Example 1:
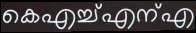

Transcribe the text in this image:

കെഎച്ച്എന്എ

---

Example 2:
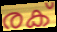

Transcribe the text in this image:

രക്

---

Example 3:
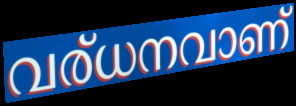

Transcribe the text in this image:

വര്ധനവാണ്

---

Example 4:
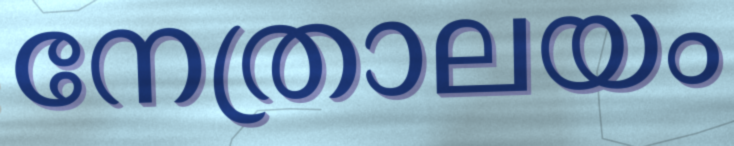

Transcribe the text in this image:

നേത്രാലയം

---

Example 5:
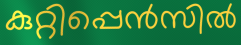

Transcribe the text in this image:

കുറ്റിപ്പെൻസിൽ